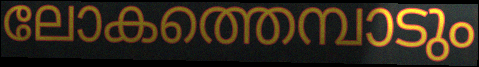
ലോകത്തെമ്പാടും